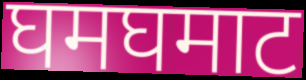
घमघमाट